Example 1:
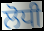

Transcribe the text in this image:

ਲੋਧੀ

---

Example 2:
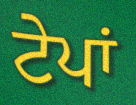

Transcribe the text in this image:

ਟੇਪਾਂ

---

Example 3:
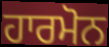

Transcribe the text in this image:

ਹਾਰਮੋਨ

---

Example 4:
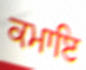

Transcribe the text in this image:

ਕਮਾਇ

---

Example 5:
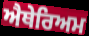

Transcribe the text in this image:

ਐਥੇਰਿਅਮ